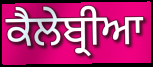
ਕੈਲੇਬ੍ਰੀਆ